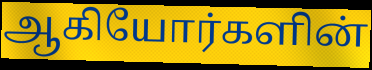
ஆகியோர்களின்